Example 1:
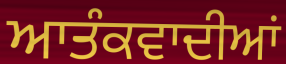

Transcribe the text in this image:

ਆਤੰਕਵਾਦੀਆਂ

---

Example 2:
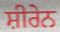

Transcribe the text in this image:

ਸ਼ੀਰੇਨ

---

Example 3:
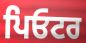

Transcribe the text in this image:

ਪਿਓਟਰ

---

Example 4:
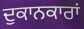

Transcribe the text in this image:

ਦੁਕਾਨਕਾਰਾਂ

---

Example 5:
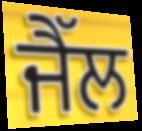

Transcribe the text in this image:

ਜੈੱਲ